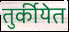
तुर्कीयेत